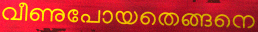
വീണുപോയതെങ്ങനെ